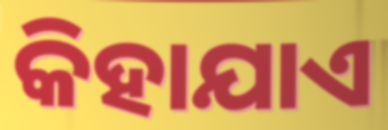
କିହାଯାଏ